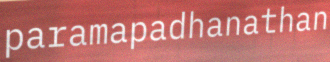
paramapadhanathan